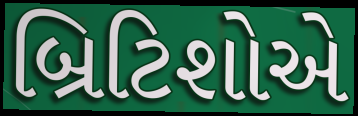
બ્રિટિશોએ